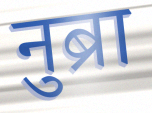
नुब्रा